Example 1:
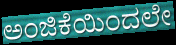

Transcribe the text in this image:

ಅಂಜಿಕೆಯಿಂದಲೇ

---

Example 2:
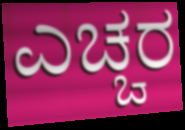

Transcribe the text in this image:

ಎಚ್ಚರ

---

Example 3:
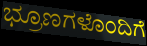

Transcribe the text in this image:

ಭ್ರೂಣಗಳೊಂದಿಗೆ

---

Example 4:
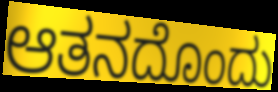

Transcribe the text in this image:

ಆತನದೊಂದು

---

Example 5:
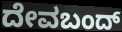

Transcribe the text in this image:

ದೇವಬಂದ್